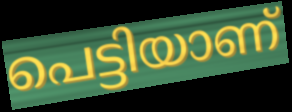
പെട്ടിയാണ്